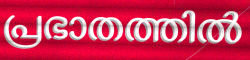
പ്രഭാതത്തിൽ